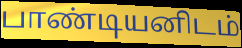
பாண்டியனிடம்